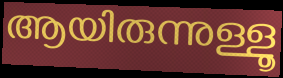
ആയിരുന്നുള്ളൂ